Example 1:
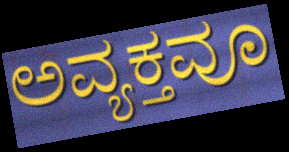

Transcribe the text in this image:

ಅವ್ಯಕ್ತವೂ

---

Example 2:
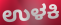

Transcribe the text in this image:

ಉಳಕಿ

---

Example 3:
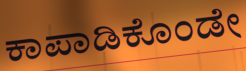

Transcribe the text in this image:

ಕಾಪಾಡಿಕೊಂಡೇ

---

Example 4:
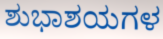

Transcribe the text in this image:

ಶುಭಾಶಯಗಳ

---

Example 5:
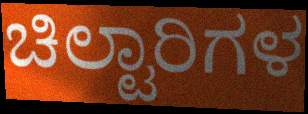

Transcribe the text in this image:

ಚಿಲ್ಟಾರಿಗಳ